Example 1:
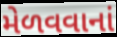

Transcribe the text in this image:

મેળવવાનાં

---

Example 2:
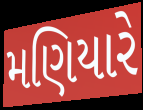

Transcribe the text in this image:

મણિયારે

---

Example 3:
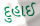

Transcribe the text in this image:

દુહાઈ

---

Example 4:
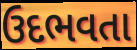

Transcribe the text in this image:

ઉદભવતા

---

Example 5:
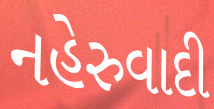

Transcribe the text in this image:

નહેરુવાદી